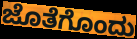
ಜೊತೆಗೊಂದು